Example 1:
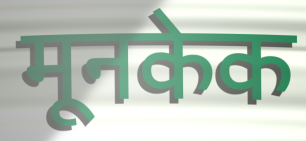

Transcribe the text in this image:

मूनकेक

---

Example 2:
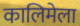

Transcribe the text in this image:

कालिमेला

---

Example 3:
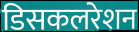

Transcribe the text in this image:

डिसकलरेशन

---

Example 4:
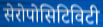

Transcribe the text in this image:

सेरोपोसिटिविटी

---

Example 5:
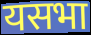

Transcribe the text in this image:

यसभा